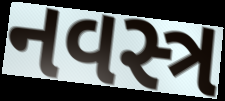
નવસ્ત્ર